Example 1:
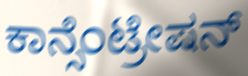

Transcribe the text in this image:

ಕಾನ್ಸೆಂಟ್ರೇಷನ್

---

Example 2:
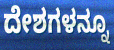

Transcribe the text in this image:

ದೇಶಗಳನ್ನೂ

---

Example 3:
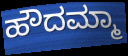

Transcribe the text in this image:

ಹೌದಮ್ಮಾ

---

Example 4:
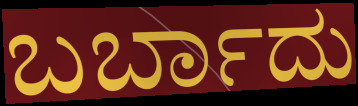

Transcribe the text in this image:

ಬರ್ಬಾದು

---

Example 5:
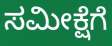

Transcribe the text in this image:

ಸಮೀಕ್ಷೆಗೆ